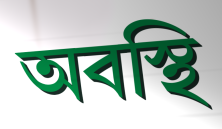
অবস্থি